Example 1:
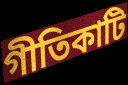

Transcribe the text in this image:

গীতিকাটি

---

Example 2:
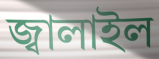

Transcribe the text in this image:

জ্বালাইল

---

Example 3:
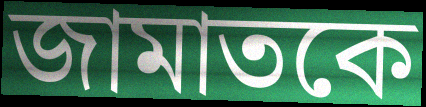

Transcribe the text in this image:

জামাতকে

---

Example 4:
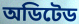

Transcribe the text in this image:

অডিটেড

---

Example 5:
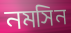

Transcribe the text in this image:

নমসিন